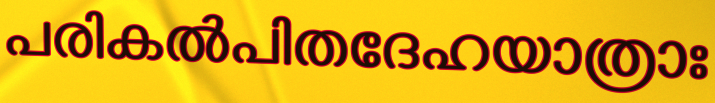
പരികൽപിതദേഹയാത്രാഃ